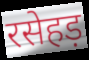
रसेहड़